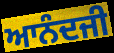
ਆਨੰਦਜੀ